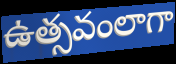
ఉత్సవంలాగా